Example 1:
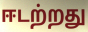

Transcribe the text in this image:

ஈடற்றது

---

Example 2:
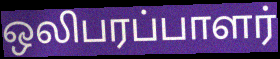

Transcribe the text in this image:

ஒலிபரப்பாளர்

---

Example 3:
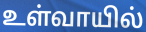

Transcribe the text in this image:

உள்வாயில்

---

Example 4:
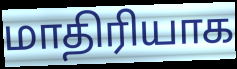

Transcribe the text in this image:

மாதிரியாக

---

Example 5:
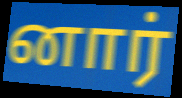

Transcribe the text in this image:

னார்